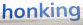
honking